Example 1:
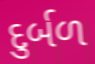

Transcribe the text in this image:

દુર્બળ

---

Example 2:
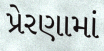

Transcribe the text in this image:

પ્રેરણામાં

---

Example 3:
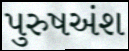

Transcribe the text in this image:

પુરુષઅંશ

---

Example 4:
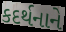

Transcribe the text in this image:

કદર્થનાને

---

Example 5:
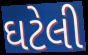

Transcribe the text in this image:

ઘટેલી